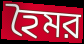
হৈমর